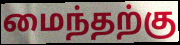
மைந்தற்கு